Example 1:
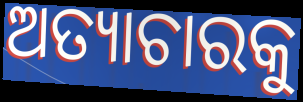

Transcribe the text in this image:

ଅତ୍ୟାଚାରକୁ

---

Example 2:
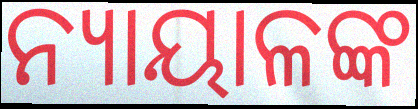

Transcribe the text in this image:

ନ୍ୟାୟାଳଙ୍କ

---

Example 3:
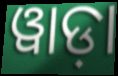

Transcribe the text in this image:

ୱାଡ଼ା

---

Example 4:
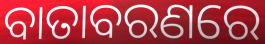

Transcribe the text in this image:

ବାତାବରଣରେ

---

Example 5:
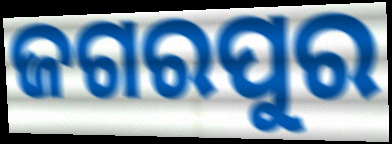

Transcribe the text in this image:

ଜଗରପୁର